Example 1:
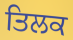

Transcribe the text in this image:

ਤਿਲਕ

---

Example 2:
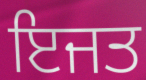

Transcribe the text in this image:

ਇਜਤ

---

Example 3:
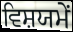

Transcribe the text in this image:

ਵਿਸ਼ਯਮੇਂ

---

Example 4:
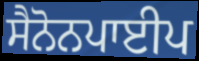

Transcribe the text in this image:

ਸੈਨੋਨਪਾਈਪ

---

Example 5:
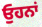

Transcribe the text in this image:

ਓੁਹਨਾਂ